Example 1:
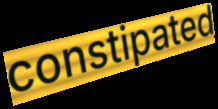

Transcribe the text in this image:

constipated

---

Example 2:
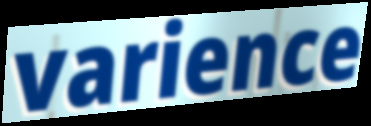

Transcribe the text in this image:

varience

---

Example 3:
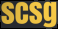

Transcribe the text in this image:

scsg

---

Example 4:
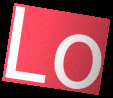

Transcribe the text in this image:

Lo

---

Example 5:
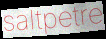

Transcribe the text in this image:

saltpetre